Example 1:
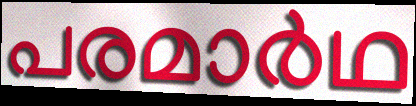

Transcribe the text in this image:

പരമാർഥ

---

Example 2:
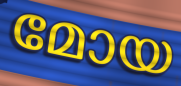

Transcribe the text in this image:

മോയ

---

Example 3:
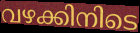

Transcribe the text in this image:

വഴക്കിനിടെ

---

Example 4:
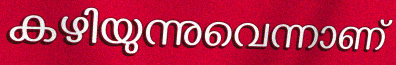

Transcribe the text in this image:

കഴിയുന്നുവെന്നാണ്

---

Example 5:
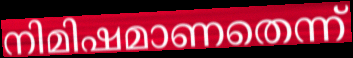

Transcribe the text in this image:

നിമിഷമാണതെന്ന്